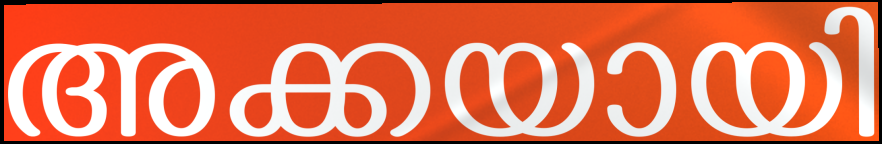
അക്കയായി